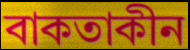
বাকতাকীন